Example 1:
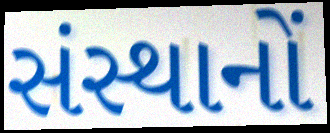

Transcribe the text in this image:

સંસ્થાનોં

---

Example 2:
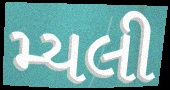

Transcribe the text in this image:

મ્યલી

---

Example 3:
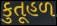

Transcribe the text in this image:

કુતૂહળ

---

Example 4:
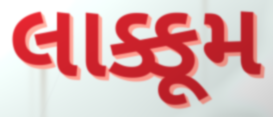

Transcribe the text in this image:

લાક્કૂમ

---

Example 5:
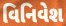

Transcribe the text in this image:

વિનિવેશ